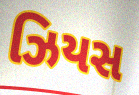
ઝિયસ